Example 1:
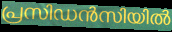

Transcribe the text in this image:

പ്രസിഡൻസിയിൽ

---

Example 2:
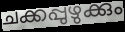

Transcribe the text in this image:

ചക്കപ്പുഴുക്കും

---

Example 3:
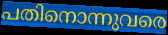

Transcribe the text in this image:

പതിനൊന്നുവരെ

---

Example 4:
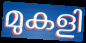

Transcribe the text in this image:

മുകളി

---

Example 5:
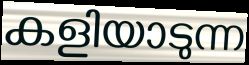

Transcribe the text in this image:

കളിയാടുന്ന